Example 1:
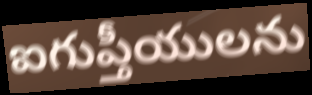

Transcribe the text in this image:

ఐగుప్తీయులను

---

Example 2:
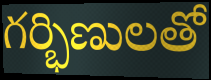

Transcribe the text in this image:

గర్భిణులతో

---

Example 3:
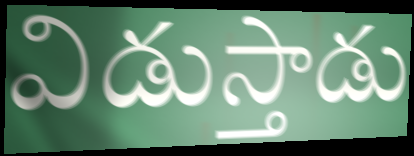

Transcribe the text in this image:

విడుస్తాడు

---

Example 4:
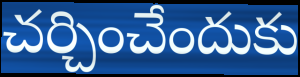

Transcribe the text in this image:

చర్చించేందుకు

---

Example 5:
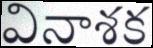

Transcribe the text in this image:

వినాశక